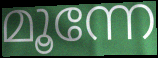
മൂന്നേ